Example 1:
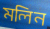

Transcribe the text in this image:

মলিন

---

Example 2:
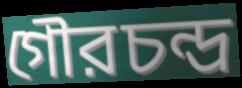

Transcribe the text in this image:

গৌরচন্দ্র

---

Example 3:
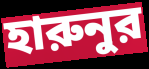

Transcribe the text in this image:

হারুনুর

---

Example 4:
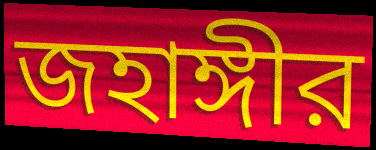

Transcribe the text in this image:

জহাঙ্গীর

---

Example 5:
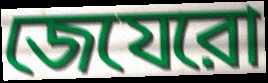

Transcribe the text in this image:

জেযেরো